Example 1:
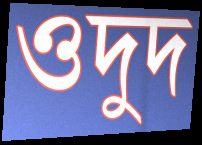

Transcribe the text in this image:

ওদুদ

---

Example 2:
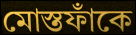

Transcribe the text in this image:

মোস্তফাঁকে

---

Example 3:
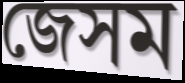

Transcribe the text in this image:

জেসম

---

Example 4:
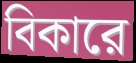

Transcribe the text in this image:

বিকারে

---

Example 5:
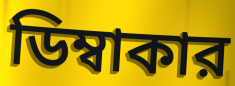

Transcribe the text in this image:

ডিম্বাকার